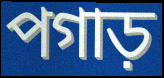
পগাড়